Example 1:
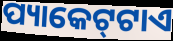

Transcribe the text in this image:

ପ୍ୟାକେଟ୍‌ଟାଏ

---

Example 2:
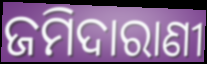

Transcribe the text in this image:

ଜମିଦାରାଣୀ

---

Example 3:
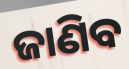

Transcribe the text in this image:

ଜାଣିବ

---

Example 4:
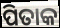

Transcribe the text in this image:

ପିତାକ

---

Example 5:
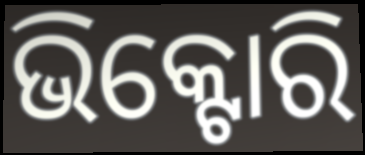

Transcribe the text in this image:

ଭିକ୍ଟୋରି